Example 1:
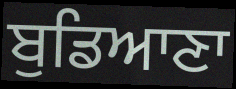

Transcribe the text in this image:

ਬੁਡਿਆਣਾ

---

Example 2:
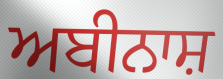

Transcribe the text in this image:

ਅਬੀਨਾਸ਼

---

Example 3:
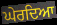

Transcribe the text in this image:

ਘੇਰਦਿਆ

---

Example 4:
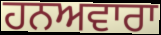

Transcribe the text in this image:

ਹਨਅਵਾਰਾ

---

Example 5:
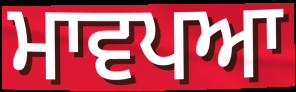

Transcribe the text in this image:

ਮਾਵਪਆ